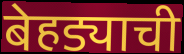
बेहड्याची